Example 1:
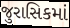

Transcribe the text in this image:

જુરાસિકમાં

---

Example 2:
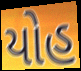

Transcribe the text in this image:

યોહ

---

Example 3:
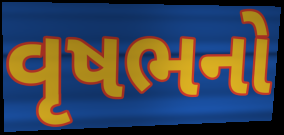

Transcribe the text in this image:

વૃષભનો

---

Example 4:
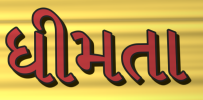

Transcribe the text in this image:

ધીમતા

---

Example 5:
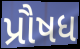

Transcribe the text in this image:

પ્રૌષધ